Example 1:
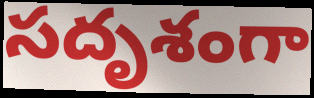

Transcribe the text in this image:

సదృశంగా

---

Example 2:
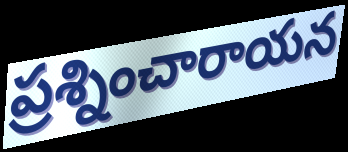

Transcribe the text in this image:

ప్రశ్నించారాయన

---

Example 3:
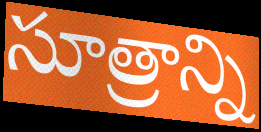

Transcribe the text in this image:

సూత్రాన్ని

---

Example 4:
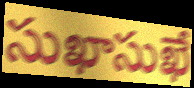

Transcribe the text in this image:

సుఖాసుఖే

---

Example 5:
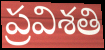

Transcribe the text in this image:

ప్రవిశతి